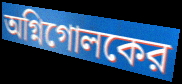
অগ্নিগোলকের